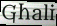
Ghali